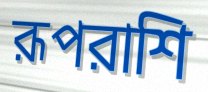
রূপরাশি